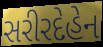
સરીરદેહેન